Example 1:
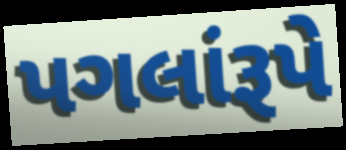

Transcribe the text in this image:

પગલાંરૂપે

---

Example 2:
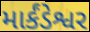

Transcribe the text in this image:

માર્કંડેશ્વર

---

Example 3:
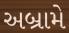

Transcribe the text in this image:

અબ્રામે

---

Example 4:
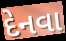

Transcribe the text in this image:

દેનવા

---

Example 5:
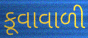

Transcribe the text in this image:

કૂવાવાળી